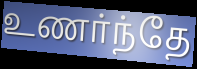
உணர்ந்தே